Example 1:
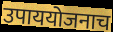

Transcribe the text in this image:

उपाययोजनाच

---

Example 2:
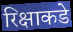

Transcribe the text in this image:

रिक्षाकडे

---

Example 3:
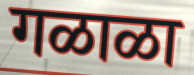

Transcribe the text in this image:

गळाळा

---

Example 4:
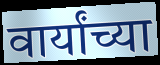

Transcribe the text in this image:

वार्यांच्या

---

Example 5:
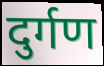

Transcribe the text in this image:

दुर्गण